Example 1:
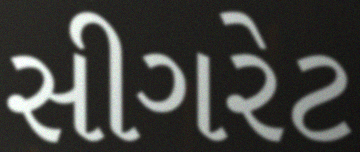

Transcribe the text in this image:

સીગરેટ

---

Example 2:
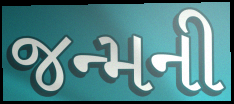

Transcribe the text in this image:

જન્મની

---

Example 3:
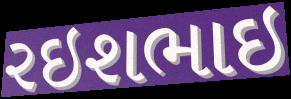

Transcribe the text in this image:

રઇશભાઇ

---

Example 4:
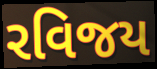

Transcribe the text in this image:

રવિજય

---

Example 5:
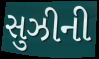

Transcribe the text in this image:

સુઝીની